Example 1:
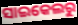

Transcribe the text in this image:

ସାଇକେଲରୁ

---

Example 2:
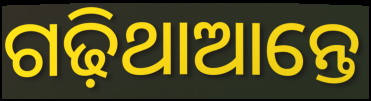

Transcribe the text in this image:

ଗଢ଼ିଥାଆନ୍ତେ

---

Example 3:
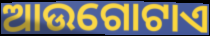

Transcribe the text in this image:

ଆଉଗୋଟାଏ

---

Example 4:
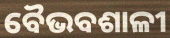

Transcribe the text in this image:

ବୈଭବଶାଳୀ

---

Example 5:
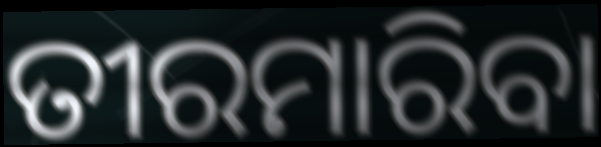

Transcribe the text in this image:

ତୀରମାରିବା